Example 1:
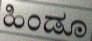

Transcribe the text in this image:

ಹಿಂಡೂ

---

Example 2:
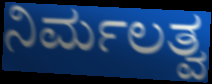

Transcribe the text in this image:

ನಿರ್ಮಲತ್ವ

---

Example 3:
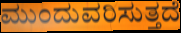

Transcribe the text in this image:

ಮುಂದುವರಿಸುತ್ತದೆ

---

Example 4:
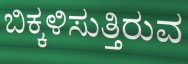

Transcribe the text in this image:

ಬಿಕ್ಕಳಿಸುತ್ತಿರುವ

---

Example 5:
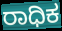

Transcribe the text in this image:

ರಾಧಿಕ